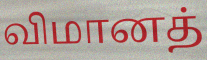
விமானத்